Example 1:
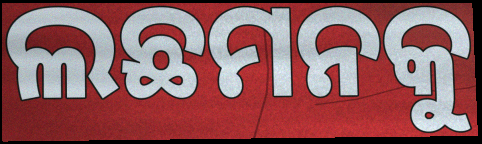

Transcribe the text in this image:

ଲଛମନକୁ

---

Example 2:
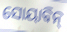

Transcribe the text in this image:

ସୋୟାବିନ୍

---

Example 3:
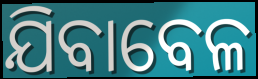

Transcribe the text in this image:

ଯିବାବେଳ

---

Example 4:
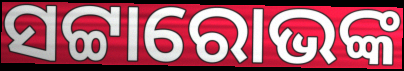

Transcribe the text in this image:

ସଟ୍ଟାରୋଭଙ୍କ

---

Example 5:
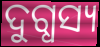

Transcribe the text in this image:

ଦୁଗ୍ଧସ୍ୟ